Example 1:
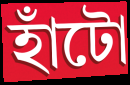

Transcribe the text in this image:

হাঁটো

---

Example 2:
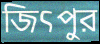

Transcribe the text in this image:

জিৎপুর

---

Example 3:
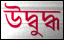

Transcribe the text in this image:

উদ্বুদ্ধ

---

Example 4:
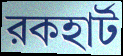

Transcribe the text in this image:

রকহার্ট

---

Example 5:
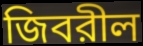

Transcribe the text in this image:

জিবরীল